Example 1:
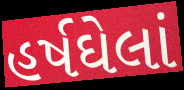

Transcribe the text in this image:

હર્ષઘેલાં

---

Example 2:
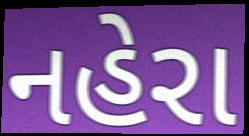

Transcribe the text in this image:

નહેરા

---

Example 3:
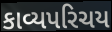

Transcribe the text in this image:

કાવ્યપરિચય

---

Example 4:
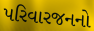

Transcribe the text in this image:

પરિવારજનનો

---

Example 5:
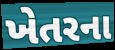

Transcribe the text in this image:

ખેતરના